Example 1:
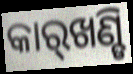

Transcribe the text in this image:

କାର୍‌ଖଣ୍ଡି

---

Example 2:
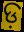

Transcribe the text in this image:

ଡ଼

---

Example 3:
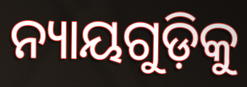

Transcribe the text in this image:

ନ୍ୟାୟଗୁଡ଼ିକୁ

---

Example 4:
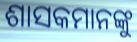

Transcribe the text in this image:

ଶାସକମାନଙ୍କୁ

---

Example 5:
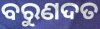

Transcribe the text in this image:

ବରୁଣଦତ